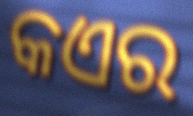
କଏର